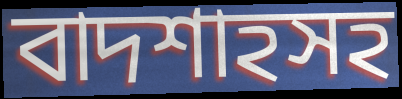
বাদশাহসহ